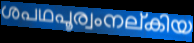
ശപഥപൂര്വംനല്കിയ